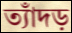
ত্যাঁদড়